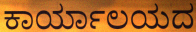
ಕಾರ್ಯಾಲಯದ